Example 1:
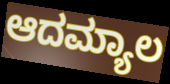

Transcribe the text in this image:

ಆದಮ್ಯಾಲ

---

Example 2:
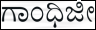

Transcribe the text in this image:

ಗಾಂಧಿಜೀ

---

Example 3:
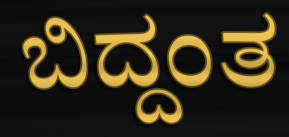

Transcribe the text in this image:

ಬಿದ್ದಂತ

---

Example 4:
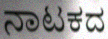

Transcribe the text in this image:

ನಾಟಕದ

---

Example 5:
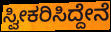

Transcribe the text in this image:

ಸ್ವೀಕರಿಸಿದ್ದೇನೆ